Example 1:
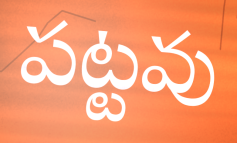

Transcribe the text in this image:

పట్టవు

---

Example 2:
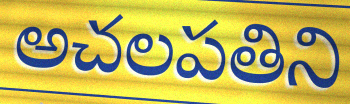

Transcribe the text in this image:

అచలపతిని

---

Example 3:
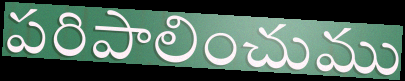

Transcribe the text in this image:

పరిపాలించుము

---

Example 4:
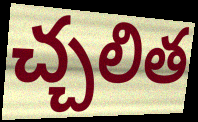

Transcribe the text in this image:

చ్చలిత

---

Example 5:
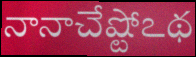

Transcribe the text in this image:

నానాచేష్టోఽథ